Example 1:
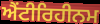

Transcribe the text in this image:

ਐਂਟੀਰਿਹੀਨਮ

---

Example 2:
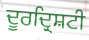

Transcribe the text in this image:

ਦੂਰਦ੍ਰਿਸ਼ਟੀ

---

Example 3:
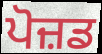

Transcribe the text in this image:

ਪੋਜ਼ਡ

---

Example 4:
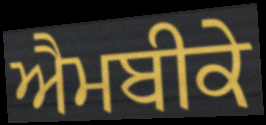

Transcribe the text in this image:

ਐਮਬੀਕੇ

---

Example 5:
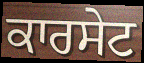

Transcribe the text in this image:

ਕਾਰਸੇਟ